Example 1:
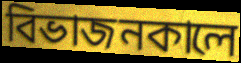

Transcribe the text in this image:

বিভাজনকালে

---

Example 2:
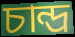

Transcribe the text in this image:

চান্দ্র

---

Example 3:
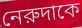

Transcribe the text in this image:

নেরুদাকে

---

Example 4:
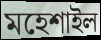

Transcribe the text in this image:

মহেশাইল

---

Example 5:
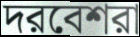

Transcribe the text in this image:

দরবেশরা